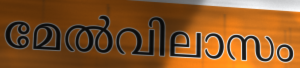
മേൽവിലാസം